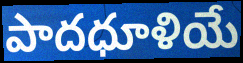
పాదధూళియే